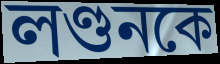
লণ্ডনকে